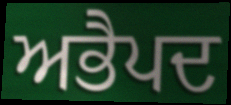
ਅਭੈਪਦ